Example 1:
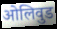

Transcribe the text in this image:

ओलिवुड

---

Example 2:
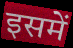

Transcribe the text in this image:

इसमें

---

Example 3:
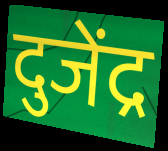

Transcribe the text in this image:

दुजेंद्र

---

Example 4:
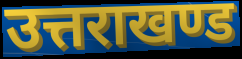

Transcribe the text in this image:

उत्तराखण्ड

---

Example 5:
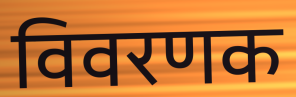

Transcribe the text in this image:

विवरणक